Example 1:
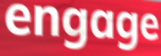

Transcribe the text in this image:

engage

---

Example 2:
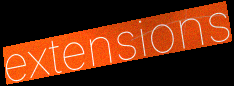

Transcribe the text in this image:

extensions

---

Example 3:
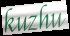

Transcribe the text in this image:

kuzhu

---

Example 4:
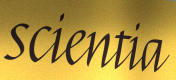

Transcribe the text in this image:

scientia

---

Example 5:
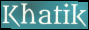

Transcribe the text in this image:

Khatik